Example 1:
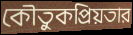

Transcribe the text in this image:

কৌতুকপ্রিয়তার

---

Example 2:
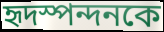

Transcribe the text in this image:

হৃদস্পন্দনকে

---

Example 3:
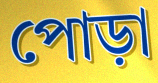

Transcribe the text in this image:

পোড়া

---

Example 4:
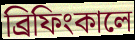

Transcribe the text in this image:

ব্রিফিংকালে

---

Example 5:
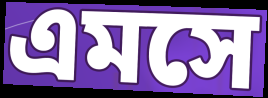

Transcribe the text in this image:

এমসে